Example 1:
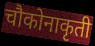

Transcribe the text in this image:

चौकोनाकृती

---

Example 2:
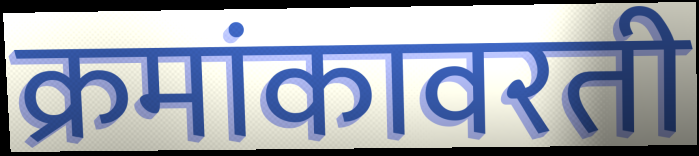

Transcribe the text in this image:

क्रमांकावरती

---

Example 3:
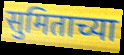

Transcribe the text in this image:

सुमिताच्या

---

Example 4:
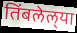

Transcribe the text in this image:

तिंबलेल्या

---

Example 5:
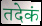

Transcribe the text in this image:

तदेकं